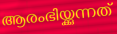
ആരംഭിയ്ക്കുന്നത്